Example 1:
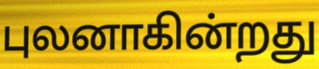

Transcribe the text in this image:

புலனாகின்றது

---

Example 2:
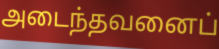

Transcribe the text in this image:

அடைந்தவனைப்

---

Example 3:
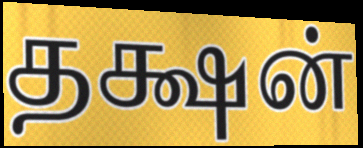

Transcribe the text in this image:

தக்ஷன்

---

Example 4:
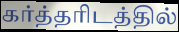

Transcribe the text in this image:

கர்த்தரிடத்தில்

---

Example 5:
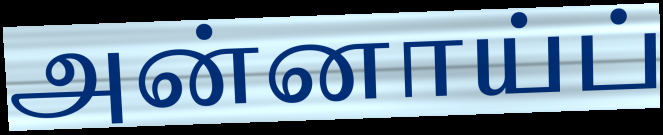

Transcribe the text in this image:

அன்னாய்ப்